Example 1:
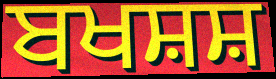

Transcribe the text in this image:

ਬਖਸ਼ਸ਼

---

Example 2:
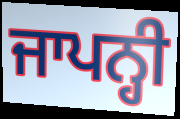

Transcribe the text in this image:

ਜਾਪਨ੍ਹੀ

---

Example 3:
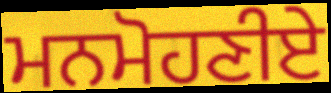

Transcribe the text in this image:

ਮਨਮੋਹਣੀਏ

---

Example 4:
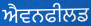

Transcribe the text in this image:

ਐਵਨਫੀਲਡ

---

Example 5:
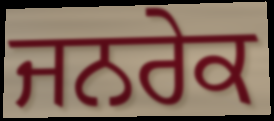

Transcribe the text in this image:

ਜਨਰੇਕ